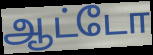
ஆட்டோ